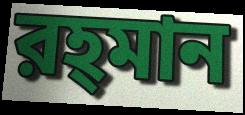
রহ্‌মান